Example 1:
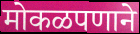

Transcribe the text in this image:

मोकळपणाने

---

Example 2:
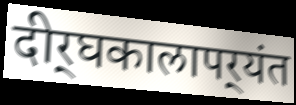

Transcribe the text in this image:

दीर्घकालापर्यंत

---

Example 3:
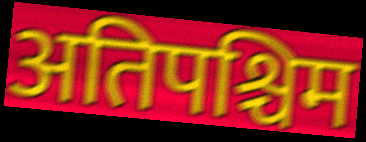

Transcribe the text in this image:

अतिपश्चिम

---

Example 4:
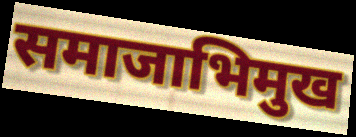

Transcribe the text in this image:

समाजाभिमुख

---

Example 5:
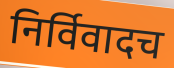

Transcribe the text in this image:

निर्विवादच